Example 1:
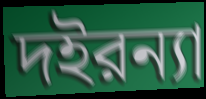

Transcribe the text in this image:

দইরন্যা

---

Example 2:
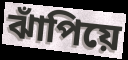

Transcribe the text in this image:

ঝাঁপিয়ে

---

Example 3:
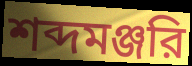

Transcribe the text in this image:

শব্দমঞ্জরি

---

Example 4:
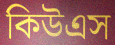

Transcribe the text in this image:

কিউএস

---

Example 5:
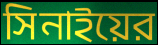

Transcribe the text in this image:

সিনাইয়ের